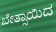
ಬೇತ್ಸಾಯಿದ